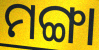
ମଙ୍ଗା